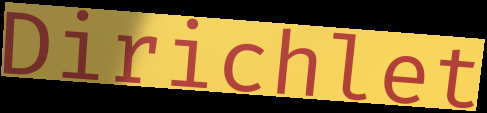
Dirichlet